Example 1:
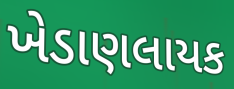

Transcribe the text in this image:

ખેડાણલાયક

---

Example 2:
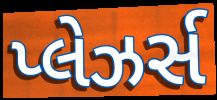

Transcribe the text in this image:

પ્લેઝર્સ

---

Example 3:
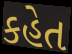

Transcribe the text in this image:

કહેત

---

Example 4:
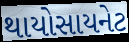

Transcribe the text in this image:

થાયોસાયનેટ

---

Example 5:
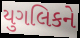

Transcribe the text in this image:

યુગલિકને